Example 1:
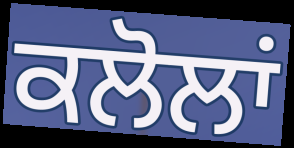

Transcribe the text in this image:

ਕਲੋਲਾਂ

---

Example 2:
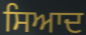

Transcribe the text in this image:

ਸਿਆਦ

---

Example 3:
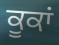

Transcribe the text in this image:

ਕੂਕਾਂ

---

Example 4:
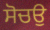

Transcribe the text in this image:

ਸੋਚਉ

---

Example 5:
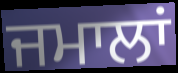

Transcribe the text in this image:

ਜਮਾਲਾਂ